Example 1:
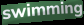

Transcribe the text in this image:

swimming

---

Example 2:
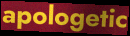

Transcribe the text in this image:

apologetic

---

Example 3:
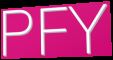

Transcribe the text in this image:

PFY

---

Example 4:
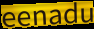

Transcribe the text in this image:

eenadu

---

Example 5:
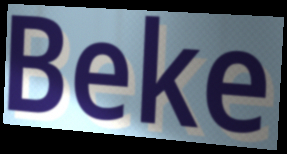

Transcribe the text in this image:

Beke